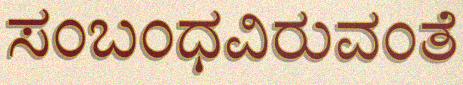
ಸಂಬಂಧವಿರುವಂತೆ